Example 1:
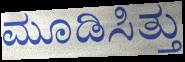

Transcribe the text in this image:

ಮೂಡಿಸಿತ್ತು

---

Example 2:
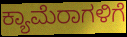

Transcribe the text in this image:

ಕ್ಯಾಮೆರಾಗಳಿಗೆ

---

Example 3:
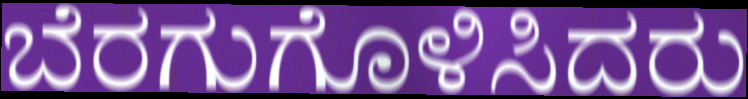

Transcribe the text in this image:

ಬೆರಗುಗೊಳಿಸಿದರು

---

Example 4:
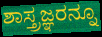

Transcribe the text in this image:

ಶಾಸ್ತ್ರಜ್ಞರನ್ನೂ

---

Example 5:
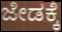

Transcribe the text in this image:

ಜೇಡಕ್ಕೆ